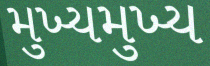
મુખ્યમુખ્ય